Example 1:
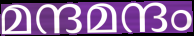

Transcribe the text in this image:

മന്ദമന്ദം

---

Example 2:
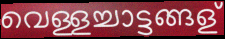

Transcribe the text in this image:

വെള്ളച്ചാട്ടങ്ങള്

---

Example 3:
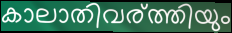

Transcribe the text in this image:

കാലാതിവര്ത്തിയും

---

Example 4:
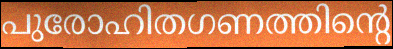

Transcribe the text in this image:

പുരോഹിതഗണത്തിന്റെ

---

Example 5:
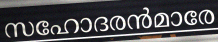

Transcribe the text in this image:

സഹോദരൻമാരേ